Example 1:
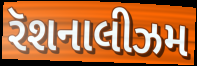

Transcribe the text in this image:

રૅશનાલીઝમ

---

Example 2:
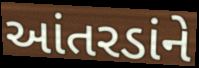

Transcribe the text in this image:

આંતરડાંને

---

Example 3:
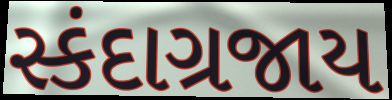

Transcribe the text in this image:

સ્કંદાગ્રજાય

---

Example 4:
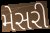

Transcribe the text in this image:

મેસરી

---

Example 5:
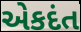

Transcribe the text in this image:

એકદંત